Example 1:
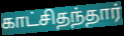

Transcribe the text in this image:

காட்சிதந்தார்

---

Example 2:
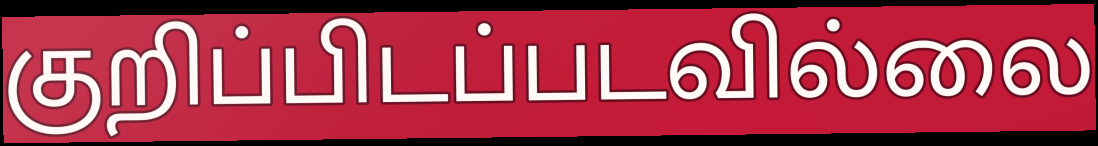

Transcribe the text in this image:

குறிப்பிடப்படவில்லை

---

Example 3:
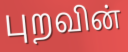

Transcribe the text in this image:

புறவின்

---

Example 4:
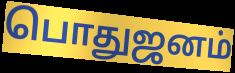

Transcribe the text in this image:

பொதுஜனம்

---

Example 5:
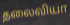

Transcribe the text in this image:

தலைவியா